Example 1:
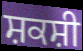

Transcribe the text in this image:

ਸ਼ਕਸ਼ੀ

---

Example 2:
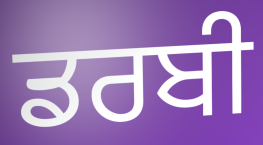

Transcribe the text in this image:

ਡਰਬੀ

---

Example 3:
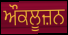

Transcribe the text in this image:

ਔਕਲੂਜ਼ਨ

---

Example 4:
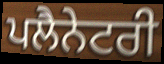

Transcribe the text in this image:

ਪਲੈਨੇਟਰੀ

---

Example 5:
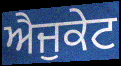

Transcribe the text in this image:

ਐਜੁਕੇਟ